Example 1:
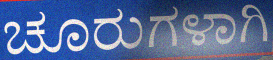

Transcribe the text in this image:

ಚೂರುಗಳಾಗಿ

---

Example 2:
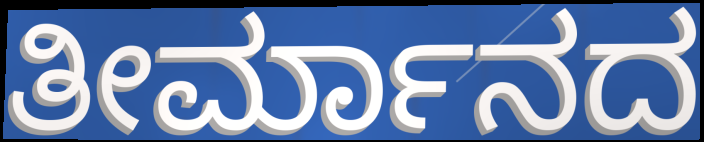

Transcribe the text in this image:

ತೀರ್ಮಾನದ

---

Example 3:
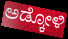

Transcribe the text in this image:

ಅಡ್ಕೋಳಿ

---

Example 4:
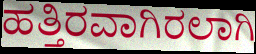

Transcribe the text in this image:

ಹತ್ತಿರವಾಗಿರಲಾಗಿ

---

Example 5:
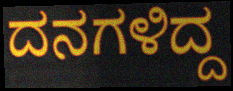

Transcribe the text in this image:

ದನಗಳಿದ್ದ